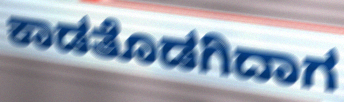
ಕಾಡತೊಡಗಿದಾಗ